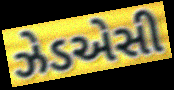
ઝેડએસી